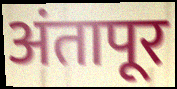
अंतापूर